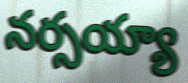
నర్సయ్యా